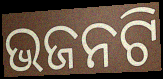
ଭଜନଟି